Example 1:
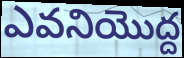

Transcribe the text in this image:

ఎవనియొద్ద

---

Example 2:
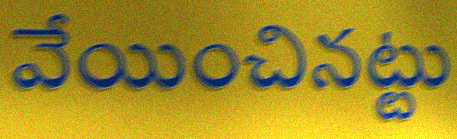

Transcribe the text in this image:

వేయించినట్టు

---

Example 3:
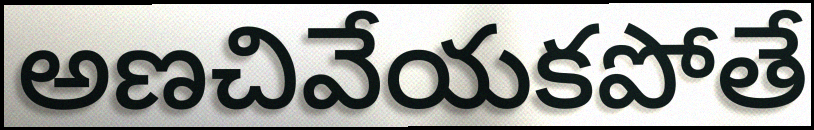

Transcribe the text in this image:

అణచివేయకపోతే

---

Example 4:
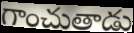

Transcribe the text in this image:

గాంచుతాడు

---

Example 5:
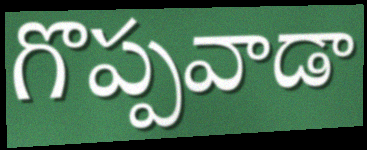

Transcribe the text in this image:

గొప్పవాడా